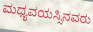
ಮಧ್ಯವಯಸ್ಸಿನವರು